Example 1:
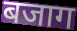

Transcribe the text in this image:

बजाग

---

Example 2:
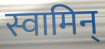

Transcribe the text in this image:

स्वामिन्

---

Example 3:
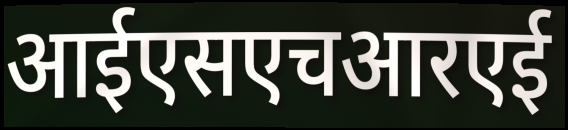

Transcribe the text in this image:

आईएसएचआरएई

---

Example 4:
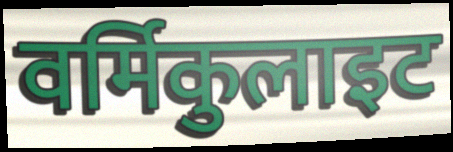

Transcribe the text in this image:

वर्मिकुलाइट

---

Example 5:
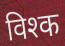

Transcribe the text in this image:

विश्क